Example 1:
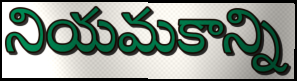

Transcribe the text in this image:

నియమకాన్ని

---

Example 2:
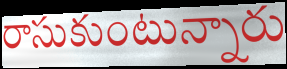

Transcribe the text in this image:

రాసుకుంటున్నారు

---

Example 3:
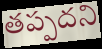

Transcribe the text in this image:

తప్పదని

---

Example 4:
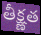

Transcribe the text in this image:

తీక్ష్ణత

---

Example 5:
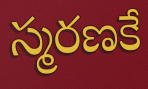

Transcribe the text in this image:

స్మరణకే